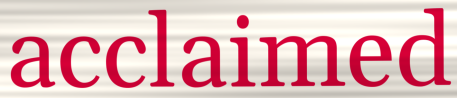
acclaimed